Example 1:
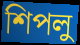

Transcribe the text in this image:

শিপলু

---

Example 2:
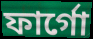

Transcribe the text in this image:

ফার্গো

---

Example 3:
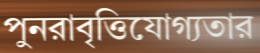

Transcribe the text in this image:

পুনরাবৃত্তিযোগ্যতার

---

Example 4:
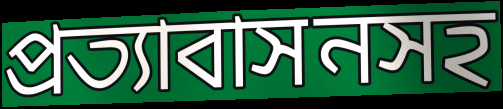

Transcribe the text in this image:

প্রত্যাবাসনসহ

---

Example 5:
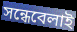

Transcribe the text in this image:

সন্ধেবেলাই